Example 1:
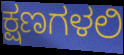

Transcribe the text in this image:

ಕ್ಷಣಗಳಲಿ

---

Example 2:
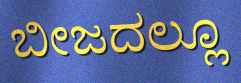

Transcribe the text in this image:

ಬೀಜದಲ್ಲೂ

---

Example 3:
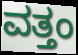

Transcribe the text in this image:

ವತ್ತಂ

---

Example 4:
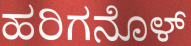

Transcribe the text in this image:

ಹರಿಗನೊಳ್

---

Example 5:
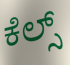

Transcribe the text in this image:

ಕೆಲ್ಸ್